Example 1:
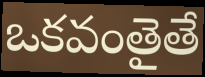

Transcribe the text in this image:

ఒకవంతైతే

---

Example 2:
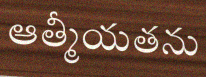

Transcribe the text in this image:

ఆత్మీయతను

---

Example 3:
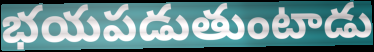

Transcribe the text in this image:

భయపడుతుంటాడు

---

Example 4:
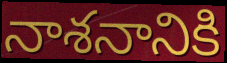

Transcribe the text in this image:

నాశనానికి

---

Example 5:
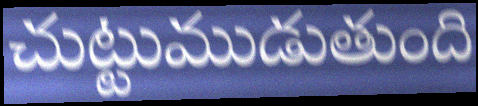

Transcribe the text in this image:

చుట్టుముడుతుంది